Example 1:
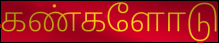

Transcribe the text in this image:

கண்களோடு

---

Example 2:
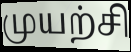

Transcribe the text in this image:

முயற்சி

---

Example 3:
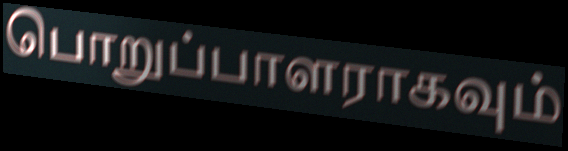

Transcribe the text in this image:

பொறுப்பாளராகவும்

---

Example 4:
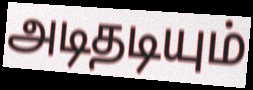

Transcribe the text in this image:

அடிதடியும்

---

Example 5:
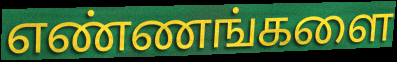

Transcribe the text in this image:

எண்ணங்களை